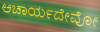
ಆಚಾರ್ಯದೇವೋ